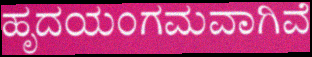
ಹೃದಯಂಗಮವಾಗಿವೆ